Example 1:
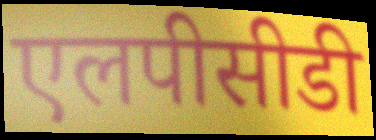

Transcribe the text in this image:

एलपीसीडी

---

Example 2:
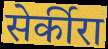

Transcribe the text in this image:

सेर्कीरा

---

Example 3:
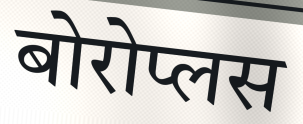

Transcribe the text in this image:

बोरोप्लस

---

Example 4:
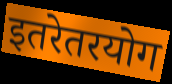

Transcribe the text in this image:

इतरेतरयोग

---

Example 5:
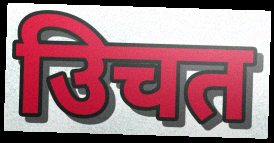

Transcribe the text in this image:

उिचत